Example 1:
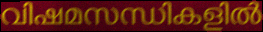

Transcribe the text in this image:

വിഷമസന്ധികളിൽ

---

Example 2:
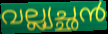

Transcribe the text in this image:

വല്ല്യച്ഛൻ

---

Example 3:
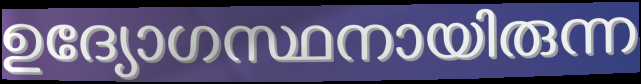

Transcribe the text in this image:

ഉദ്യോഗസ്ഥനായിരുന്ന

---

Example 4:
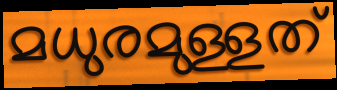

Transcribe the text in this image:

മധുരമുള്ളത്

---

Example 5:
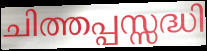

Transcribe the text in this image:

ചിത്തപ്പസ്സദ്ധി